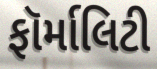
ફૉર્માલિટી